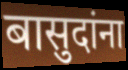
बासुदांना